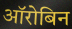
ऑरोबिन